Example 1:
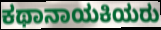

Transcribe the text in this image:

ಕಥಾನಾಯಕಿಯರು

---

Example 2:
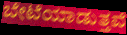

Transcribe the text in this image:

ಬೇಟೆಯಾಡುತ್ತವೆ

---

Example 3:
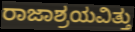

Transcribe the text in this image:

ರಾಜಾಶ್ರಯವಿತ್ತು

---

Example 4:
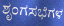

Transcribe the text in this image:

ಶೃಂಗಸಭೆಗಳ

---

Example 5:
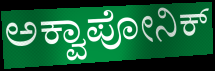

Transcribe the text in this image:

ಅಕ್ವಾಪೋನಿಕ್